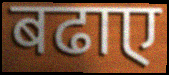
बढाए